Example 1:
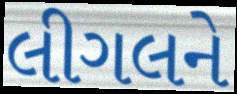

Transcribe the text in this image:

લીગલને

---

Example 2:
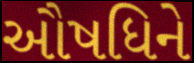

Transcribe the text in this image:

ઔષધિને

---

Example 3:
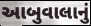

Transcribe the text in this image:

આબુવાલાનું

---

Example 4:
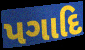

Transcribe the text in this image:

પગાદિ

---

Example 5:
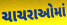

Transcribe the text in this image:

ચાચરાઓમાં